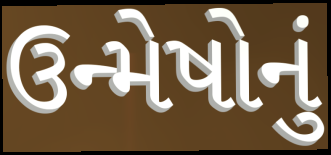
ઉન્મેષોનું